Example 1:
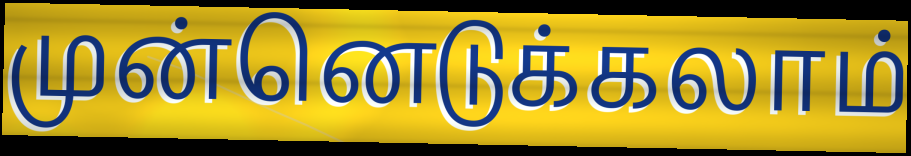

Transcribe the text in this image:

முன்னெடுக்கலாம்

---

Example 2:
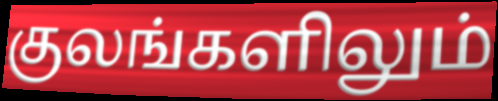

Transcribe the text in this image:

குலங்களிலும்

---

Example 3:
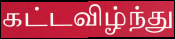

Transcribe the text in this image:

கட்டவிழ்ந்து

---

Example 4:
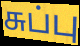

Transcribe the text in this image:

சுப்பு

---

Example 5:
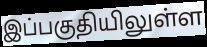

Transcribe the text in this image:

இப்பகுதியிலுள்ள